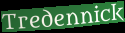
Tredennick